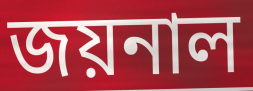
জয়নাল